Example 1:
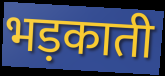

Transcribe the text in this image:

भड़काती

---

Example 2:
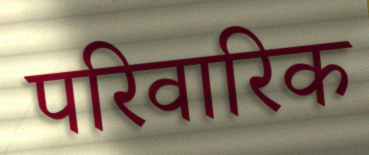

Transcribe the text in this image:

परिवारिक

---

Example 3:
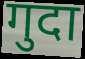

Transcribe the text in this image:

गुदा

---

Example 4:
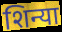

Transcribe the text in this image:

शिन्या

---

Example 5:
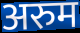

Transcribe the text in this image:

अरुम